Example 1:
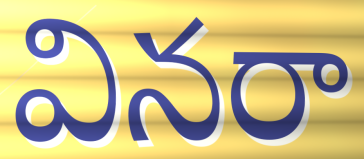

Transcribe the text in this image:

వినరా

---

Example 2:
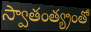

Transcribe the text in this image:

స్వాతంత్య్రంతో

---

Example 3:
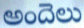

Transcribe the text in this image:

అందెలు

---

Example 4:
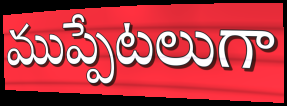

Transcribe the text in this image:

ముప్పేటలుగా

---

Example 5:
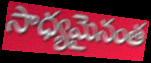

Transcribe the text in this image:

సాధ్యమైనంత